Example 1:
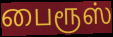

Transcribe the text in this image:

பைரூஸ்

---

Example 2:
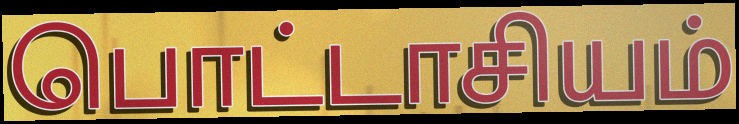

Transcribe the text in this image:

பொட்டாசியம்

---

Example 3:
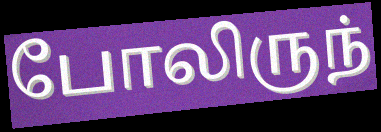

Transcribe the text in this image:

போலிருந்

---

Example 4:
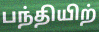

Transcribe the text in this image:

பந்தியிற்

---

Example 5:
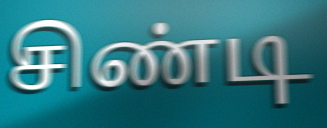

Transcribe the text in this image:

சிண்டி